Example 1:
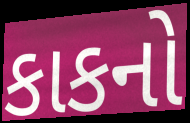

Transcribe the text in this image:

કાકનો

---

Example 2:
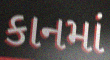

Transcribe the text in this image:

કાનમાં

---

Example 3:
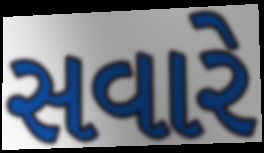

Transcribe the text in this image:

સવારે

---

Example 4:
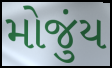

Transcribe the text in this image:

મોજુંય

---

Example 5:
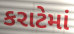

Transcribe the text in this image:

કરાટેમાં